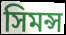
সিমন্স